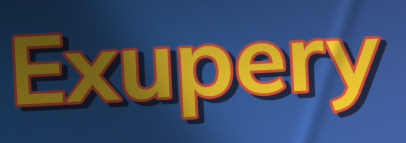
Exupery